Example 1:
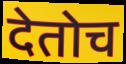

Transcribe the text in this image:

देतोच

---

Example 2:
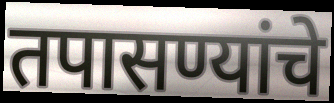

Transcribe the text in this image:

तपासण्यांचे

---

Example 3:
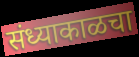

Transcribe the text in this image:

संध्याकाळचा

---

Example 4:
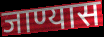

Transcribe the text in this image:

जाण्यास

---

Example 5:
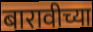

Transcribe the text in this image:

बारावीच्या